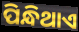
ପିନ୍ଧିଥାଏ